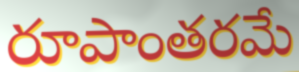
రూపాంతరమే